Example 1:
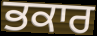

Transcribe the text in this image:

ਭਕਾਰ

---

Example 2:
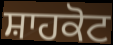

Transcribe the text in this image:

ਸ਼ਾਹਕੋਟ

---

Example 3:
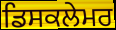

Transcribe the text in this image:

ਡਿਸਕਲੇਮਰ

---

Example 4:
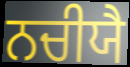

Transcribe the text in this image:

ਨਚੀਯੈ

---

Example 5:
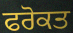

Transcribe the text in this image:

ਫਰੋਕਤ